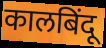
कालबिंदू